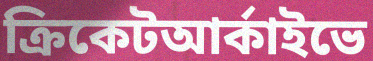
ক্রিকেটআর্কাইভে